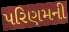
પરિણમની